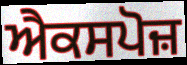
ਐਕਸਪੋਜ਼